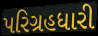
પરિગ્રહધારી